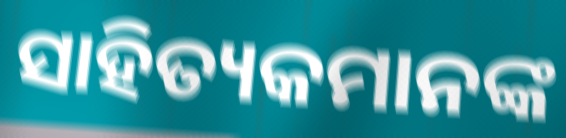
ସାହିତ୍ୟକମାନଙ୍କ